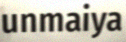
unmaiya